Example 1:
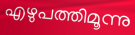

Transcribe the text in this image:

എഴുപത്തിമൂന്നു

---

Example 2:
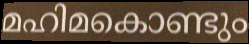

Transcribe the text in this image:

മഹിമകൊണ്ടും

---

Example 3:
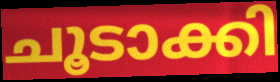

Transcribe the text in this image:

ചൂടാക്കി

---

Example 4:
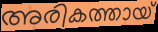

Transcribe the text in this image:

അരികത്തായ്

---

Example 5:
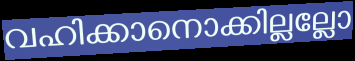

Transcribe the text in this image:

വഹിക്കാനൊക്കില്ലല്ലോ